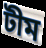
টীম